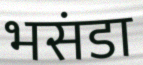
भसंडा